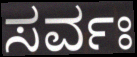
ಸರ್ವಃ